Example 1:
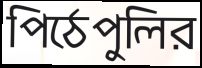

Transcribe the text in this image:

পিঠেপুলির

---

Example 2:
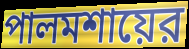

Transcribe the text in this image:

পালমশায়ের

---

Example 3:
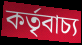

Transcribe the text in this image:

কর্তৃবাচ্য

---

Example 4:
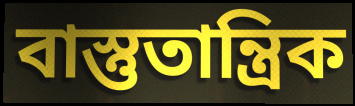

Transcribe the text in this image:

বাস্তুতান্ত্রিক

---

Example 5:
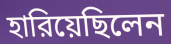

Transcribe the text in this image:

হারিয়েছিলেন